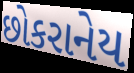
છોકરાનેય